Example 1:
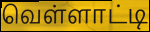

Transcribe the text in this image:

வெள்ளாட்டி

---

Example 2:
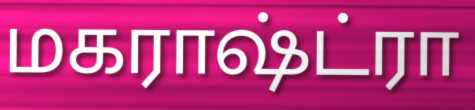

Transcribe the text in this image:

மகராஷ்ட்ரா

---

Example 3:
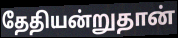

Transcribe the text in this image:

தேதியன்றுதான்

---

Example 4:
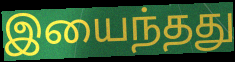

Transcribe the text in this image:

இயைந்தது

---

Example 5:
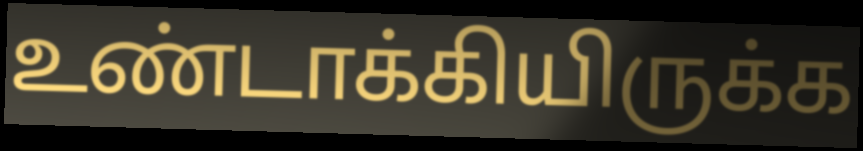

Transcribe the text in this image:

உண்டாக்கியிருக்க